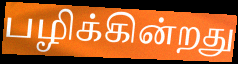
பழிக்கின்றது